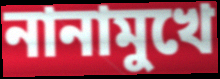
নানামুখে